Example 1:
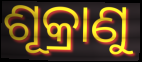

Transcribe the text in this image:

ଶୂକ୍ରାଣୁ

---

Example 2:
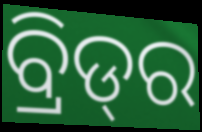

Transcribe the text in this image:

ବ୍ରିଡ୍‌ର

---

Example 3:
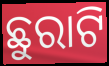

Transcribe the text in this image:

ଛୁରାଟି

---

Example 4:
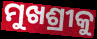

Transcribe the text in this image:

ମୁଖଶ୍ରୀକୁ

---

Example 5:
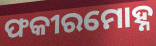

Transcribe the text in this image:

ଫକୀରମୋହ୍ନ